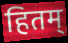
हितम्